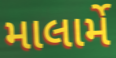
માલાર્મે